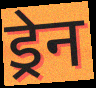
ड्रेन